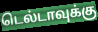
டெல்டாவுக்கு